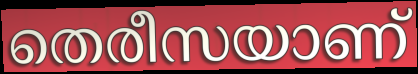
തെരീസയാണ്